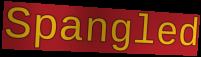
Spangled